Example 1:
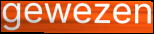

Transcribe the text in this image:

gewezen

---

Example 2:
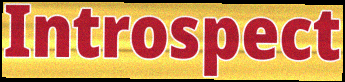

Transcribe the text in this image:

Introspect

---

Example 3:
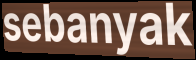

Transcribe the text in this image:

sebanyak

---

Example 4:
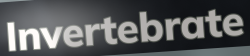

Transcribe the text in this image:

Invertebrate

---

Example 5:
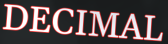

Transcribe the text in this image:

DECIMAL